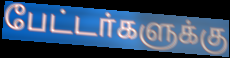
பேட்டர்களுக்கு